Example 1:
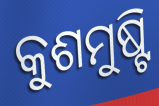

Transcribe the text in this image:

କୁଶମୁଷ୍ଟି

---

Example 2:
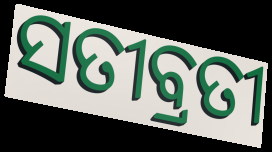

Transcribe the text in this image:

ସତୀବ୍ରତୀ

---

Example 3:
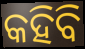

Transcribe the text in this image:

କହିବି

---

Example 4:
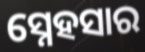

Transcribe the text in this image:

ସ୍ନେହସାର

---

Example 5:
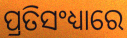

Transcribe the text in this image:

ପ୍ରତିସଂଧ୍ୟାରେ